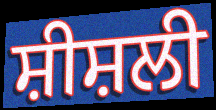
ਸ਼ੀਸ਼ਲੀ